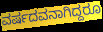
ವರ್ಷದವನಾಗಿದ್ದರೂ